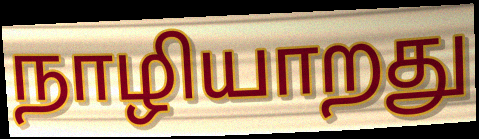
நாழியாறது